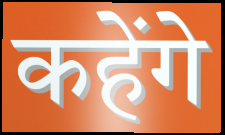
कहेंगे